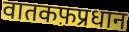
वातकफ़प्रधान